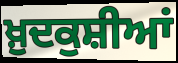
ਖ਼ੁਦਕੁਸ਼ੀਆਂ